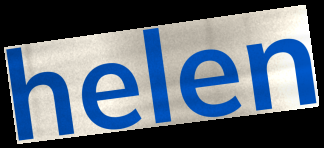
helen